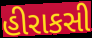
હીરાકસી